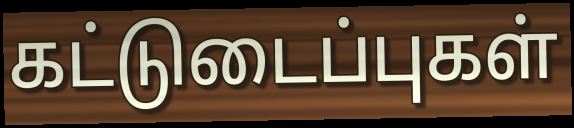
கட்டுடைப்புகள்